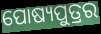
ପୋଷ୍ୟପୁତ୍ରର